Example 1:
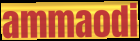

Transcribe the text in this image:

ammaodi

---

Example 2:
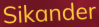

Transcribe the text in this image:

Sikander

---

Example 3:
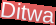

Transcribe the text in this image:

Ditwa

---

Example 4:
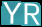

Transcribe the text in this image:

YR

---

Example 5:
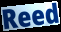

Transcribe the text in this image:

Reed